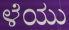
ಳೆಯು